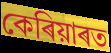
কেৰিয়াৰত